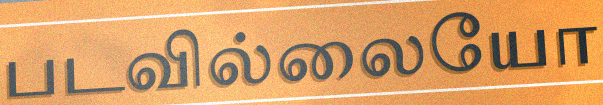
படவில்லையோ